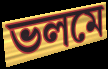
ভলমে